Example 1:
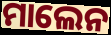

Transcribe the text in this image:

ମାଲେନ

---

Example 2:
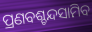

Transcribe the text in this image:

ପ୍ରଣବଶ୍ଚନ୍ଦସାମିବ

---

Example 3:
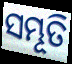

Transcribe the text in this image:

ସମ୍ଭୂତି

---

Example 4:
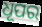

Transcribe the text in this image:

ଧୂପର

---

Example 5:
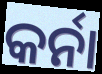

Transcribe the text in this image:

କର୍ନା